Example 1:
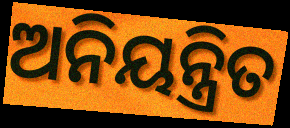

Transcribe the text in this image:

ଅନିୟନ୍ତ୍ରିତ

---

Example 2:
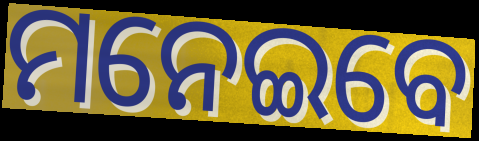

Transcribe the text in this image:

ମନେଇବେ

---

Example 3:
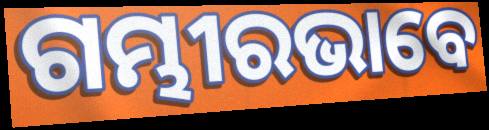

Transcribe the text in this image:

ଗମ୍ଭୀରଭାବେ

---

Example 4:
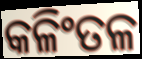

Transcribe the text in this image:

କଳିଂତଳ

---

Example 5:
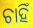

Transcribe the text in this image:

ଚାହିଁ